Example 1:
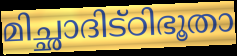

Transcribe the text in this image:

മിച്ഛാദിട്ഠിഭൂതാ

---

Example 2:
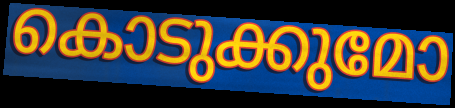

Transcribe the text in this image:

കൊടുക്കുമോ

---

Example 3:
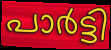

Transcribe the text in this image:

പാർട്ടി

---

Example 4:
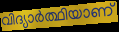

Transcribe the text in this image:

വിദ്യാർത്ഥിയാണ്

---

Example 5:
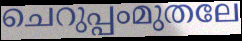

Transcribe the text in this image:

ചെറുപ്പംമുതലേ